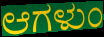
ಆಗಳುಂ